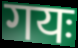
गयः